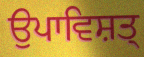
ਉਪਾਵਿਸ਼ਤ੍